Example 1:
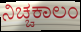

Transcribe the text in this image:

ನಿಚ್ಚಕಾಲಂ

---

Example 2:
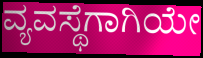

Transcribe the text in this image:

ವ್ಯವಸ್ಥೆಗಾಗಿಯೇ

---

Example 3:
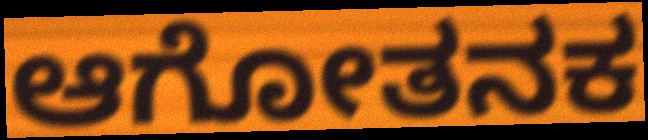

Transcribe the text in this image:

ಆಗೋತನಕ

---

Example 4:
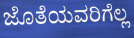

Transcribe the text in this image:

ಜೊತೆಯವರಿಗೆಲ್ಲ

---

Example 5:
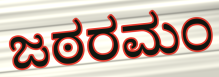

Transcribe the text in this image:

ಜಠರಮಂ